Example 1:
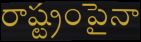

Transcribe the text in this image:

రాష్ట్రంపైనా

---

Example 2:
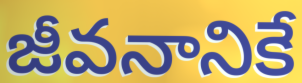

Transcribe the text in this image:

జీవనానికే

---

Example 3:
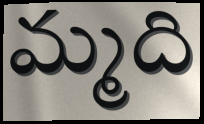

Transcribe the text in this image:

మ్మది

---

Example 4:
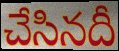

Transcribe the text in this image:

చేసినదీ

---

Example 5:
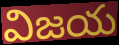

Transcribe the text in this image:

విజయ